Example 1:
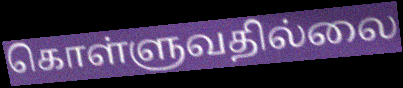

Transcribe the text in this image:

கொள்ளுவதில்லை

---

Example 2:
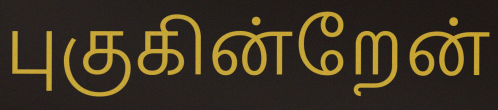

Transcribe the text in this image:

புகுகின்றேன்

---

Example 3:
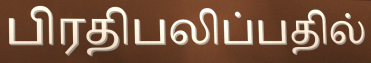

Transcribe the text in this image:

பிரதிபலிப்பதில்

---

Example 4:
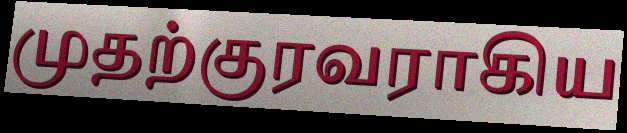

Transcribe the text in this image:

முதற்குரவராகிய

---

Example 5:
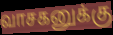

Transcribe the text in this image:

வாசகனுக்கு